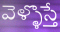
వెళ్ళొస్తే